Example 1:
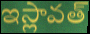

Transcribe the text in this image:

ఇస్లావత్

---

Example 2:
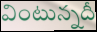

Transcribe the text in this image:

వింటున్నదీ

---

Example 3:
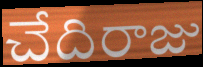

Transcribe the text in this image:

చేదిరాజు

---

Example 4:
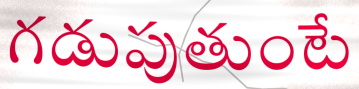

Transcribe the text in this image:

గడుపుతుంటే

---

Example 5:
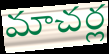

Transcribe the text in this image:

మాచర్ల